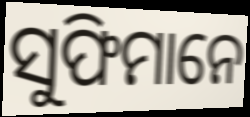
ସୁଫିମାନେ